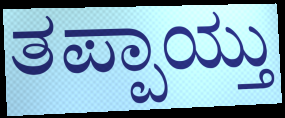
ತಪ್ಪಾಯ್ತು